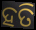
ହତି